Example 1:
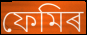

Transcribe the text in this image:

ফেমিৰ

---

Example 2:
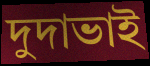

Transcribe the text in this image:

দুদাভাই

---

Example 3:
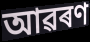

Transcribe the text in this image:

আৱৰণ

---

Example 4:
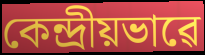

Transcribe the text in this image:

কেন্দ্ৰীয়ভাৱে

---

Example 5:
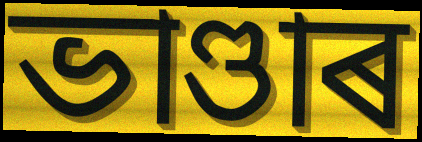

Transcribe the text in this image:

ভাণ্ডাৰ